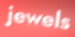
jewels